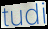
tudi